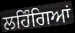
ਲਹਿੰਗਿਆਂ